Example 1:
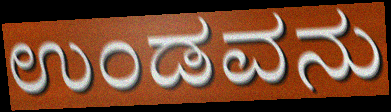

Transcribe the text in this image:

ಉಂಡವನು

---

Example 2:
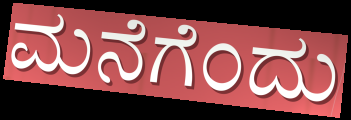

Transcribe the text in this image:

ಮನೆಗೆಂದು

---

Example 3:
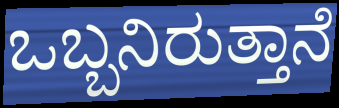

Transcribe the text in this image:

ಒಬ್ಬನಿರುತ್ತಾನೆ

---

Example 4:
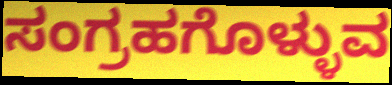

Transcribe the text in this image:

ಸಂಗ್ರಹಗೊಳ್ಳುವ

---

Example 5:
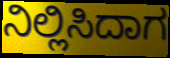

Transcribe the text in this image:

ನಿಲ್ಲಿಸಿದಾಗ